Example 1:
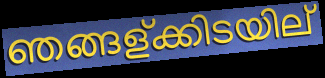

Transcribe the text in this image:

ഞങ്ങള്ക്കിടയില്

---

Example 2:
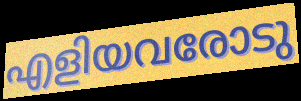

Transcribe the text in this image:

എളിയവരോടു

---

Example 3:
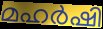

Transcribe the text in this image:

മഹർഷി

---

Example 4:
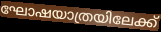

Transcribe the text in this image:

ഘോഷയാത്രയിലേക്ക്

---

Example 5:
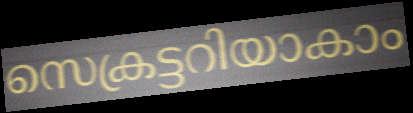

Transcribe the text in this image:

സെക്രട്ടറിയാകാം